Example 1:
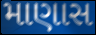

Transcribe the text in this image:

માણાસ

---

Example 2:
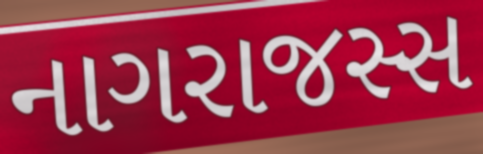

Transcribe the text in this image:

નાગરાજસ્સ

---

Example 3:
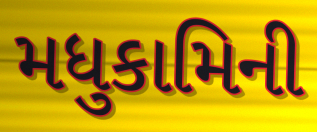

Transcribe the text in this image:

મધુકામિની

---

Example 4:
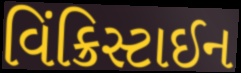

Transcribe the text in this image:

વિંક્રિસ્ટાઈન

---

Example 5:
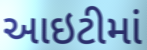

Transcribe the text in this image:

આઇટીમાં